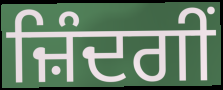
ਜ਼ਿੰਦਗੀਂ